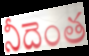
నీదెంత